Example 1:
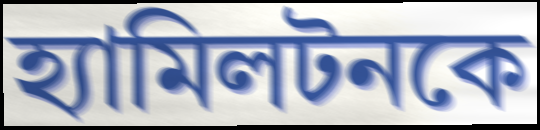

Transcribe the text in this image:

হ্যামিলটনকে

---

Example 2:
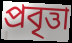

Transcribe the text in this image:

প্রবৃত্তা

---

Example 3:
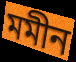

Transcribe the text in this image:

মমীন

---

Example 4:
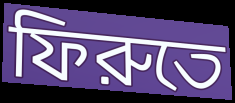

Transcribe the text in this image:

ফিরুতে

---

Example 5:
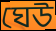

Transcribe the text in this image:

ঘেউ